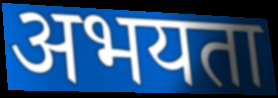
अभयता